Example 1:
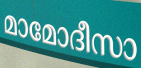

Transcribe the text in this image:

മാമോദീസാ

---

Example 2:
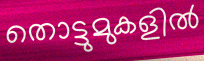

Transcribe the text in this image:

തൊട്ടുമുകളിൽ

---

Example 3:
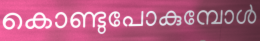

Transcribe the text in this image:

കൊണ്ടുപോകുമ്പോൾ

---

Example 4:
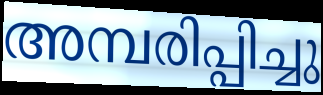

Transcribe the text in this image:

അമ്പരിപ്പിച്ചു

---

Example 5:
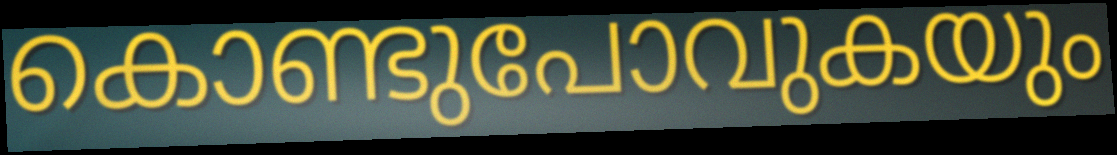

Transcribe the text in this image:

കൊണ്ടുപോവുകയും